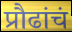
प्रौढांचं